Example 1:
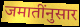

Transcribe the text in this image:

जमातींनुसार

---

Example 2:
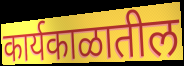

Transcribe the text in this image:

कार्यकाळातील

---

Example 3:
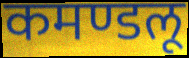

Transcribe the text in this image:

कमण्डलू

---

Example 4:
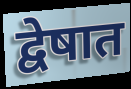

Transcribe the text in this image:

द्वेषात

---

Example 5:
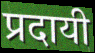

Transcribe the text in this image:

प्रदायी